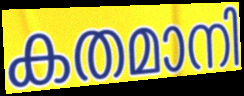
കതമാനി